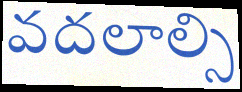
వదలాల్సి